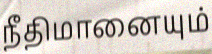
நீதிமானையும்